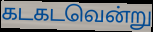
கடகடவென்று